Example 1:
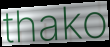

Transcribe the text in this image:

thako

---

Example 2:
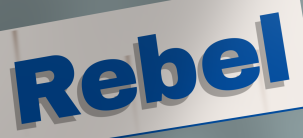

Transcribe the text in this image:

Rebel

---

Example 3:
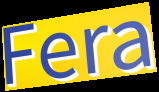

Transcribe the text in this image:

Fera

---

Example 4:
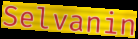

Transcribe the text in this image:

Selvanin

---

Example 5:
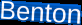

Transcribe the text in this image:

Benton